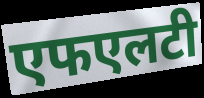
एफएलटी